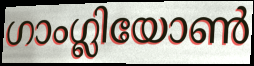
ഗാംഗ്ലിയോൺ